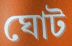
ঘোট